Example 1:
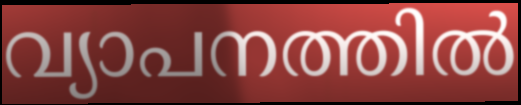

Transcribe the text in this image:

വ്യാപനത്തിൽ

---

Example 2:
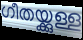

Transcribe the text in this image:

ഗീതയ്ക്കുള്ള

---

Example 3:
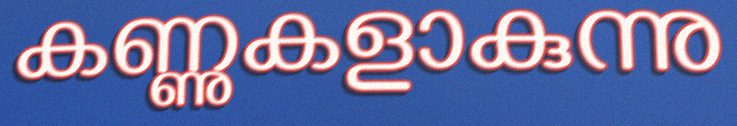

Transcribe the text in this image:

കണ്ണുകളാകുന്നു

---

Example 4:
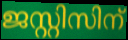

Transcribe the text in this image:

ജസ്റ്റിസിന്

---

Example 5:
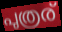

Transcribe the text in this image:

പുത്രര്